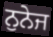
ਨੁਨੇਜ